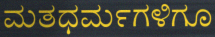
ಮತಧರ್ಮಗಳಿಗೂ